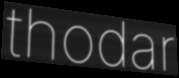
thodar